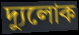
দ্যুলোক